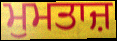
ਮੁਮਤਾਜ਼